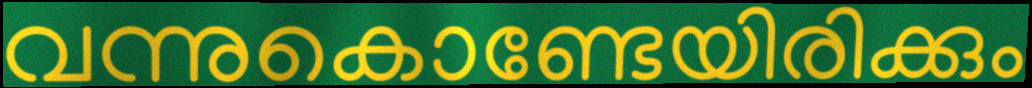
വന്നുകൊണ്ടേയിരിക്കും